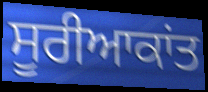
ਸੂਰੀਆਕਾਂਤ